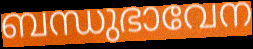
ബന്ധുഭാവേന